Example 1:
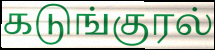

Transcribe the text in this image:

கடுங்குரல்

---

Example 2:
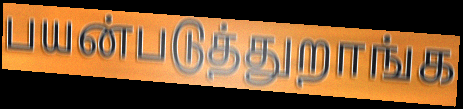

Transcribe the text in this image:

பயன்படுத்துறாங்க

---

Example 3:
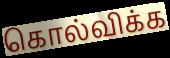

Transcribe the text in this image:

கொல்விக்க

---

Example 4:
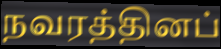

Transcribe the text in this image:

நவரத்தினப்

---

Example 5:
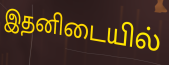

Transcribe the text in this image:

இதனிடையில்